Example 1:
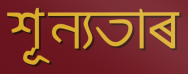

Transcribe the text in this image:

শূন্যতাৰ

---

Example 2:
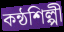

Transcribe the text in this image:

কন্ঠশিল্পী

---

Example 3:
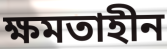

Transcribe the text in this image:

ক্ষমতাহীন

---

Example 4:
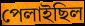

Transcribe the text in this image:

পেলাইছিল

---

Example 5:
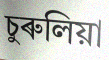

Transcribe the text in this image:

চুৰুলিয়া